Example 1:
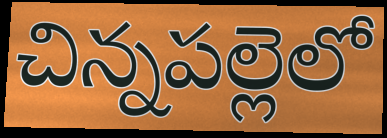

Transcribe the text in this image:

చిన్నపల్లెలో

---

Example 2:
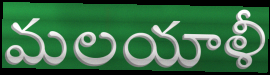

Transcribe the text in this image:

మలయాళీ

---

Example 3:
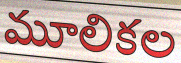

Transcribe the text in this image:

మూలికల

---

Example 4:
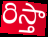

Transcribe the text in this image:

రిస్తా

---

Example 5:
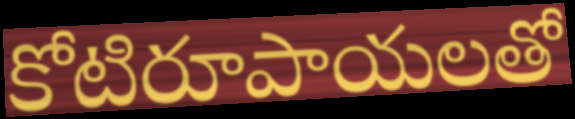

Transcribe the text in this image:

కోటిరూపాయలతో